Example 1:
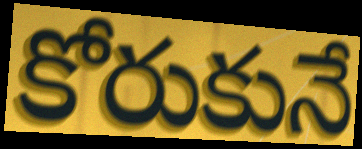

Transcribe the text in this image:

కోరుకునే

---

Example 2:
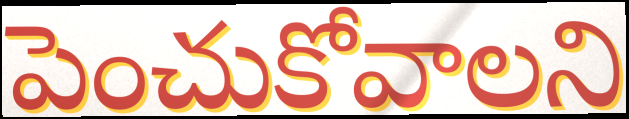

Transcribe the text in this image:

పెంచుకోవాలని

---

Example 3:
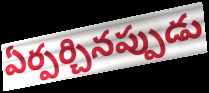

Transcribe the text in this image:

ఏర్పర్చినప్పుడు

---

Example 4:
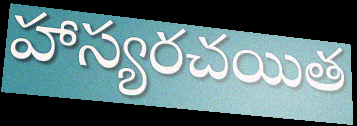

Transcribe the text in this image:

హాస్యరచయిత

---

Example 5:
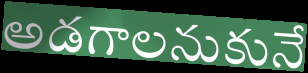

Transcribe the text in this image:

అడగాలనుకునే